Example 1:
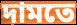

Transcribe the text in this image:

দামতে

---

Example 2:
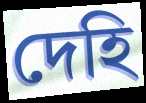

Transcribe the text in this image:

দেহি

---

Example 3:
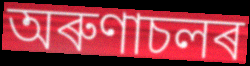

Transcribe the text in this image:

অৰুণাচলৰ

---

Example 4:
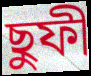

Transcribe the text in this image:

ছুফী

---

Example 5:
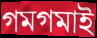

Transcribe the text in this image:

গমগমাই